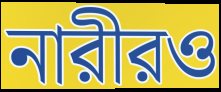
নারীরও